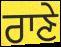
ਰਾਣੇ